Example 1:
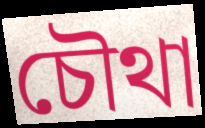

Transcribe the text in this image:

চৌথা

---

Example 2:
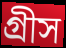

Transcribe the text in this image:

গ্রীস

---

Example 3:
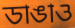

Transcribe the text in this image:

ডাঙাও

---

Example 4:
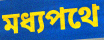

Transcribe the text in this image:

মধ্যপথে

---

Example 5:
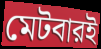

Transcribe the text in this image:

মেটবারই